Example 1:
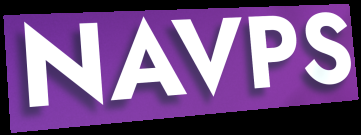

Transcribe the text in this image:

NAVPS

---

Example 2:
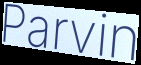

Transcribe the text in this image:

Parvin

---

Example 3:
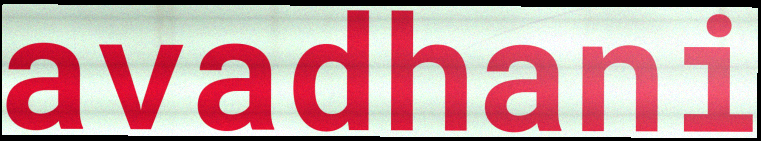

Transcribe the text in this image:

avadhani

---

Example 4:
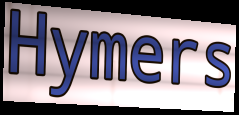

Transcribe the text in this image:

Hymers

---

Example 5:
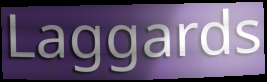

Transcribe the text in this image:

Laggards